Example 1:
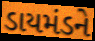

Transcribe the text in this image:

ડાયમંડને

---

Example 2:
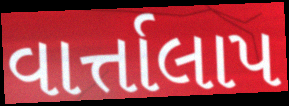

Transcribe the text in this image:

વાર્ત્તાલાપ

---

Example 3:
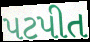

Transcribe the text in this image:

પટપીત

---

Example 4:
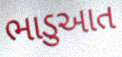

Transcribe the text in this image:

ભાડુઆત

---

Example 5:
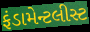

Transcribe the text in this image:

ફંડામેન્ટલીસ્ટ